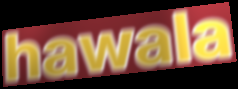
hawala